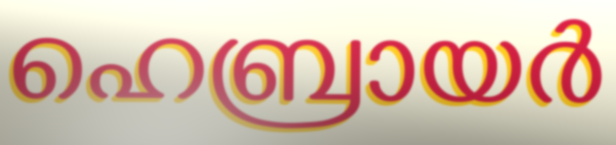
ഹെബ്രായർ